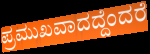
ಪ್ರಮುಖವಾದದ್ದೆಂದರೆ